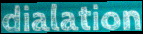
dialation